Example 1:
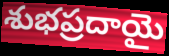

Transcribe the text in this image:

శుభప్రదాయై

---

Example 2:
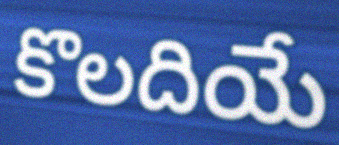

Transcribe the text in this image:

కొలదియే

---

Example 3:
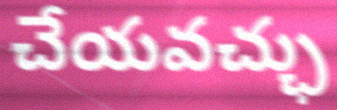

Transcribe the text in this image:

చేయవచ్ఛు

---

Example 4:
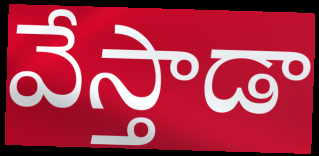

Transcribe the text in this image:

వేస్తాడా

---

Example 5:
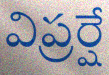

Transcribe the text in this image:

విప్రర్షే